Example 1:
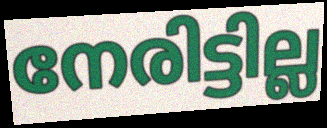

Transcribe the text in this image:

നേരിട്ടില്ല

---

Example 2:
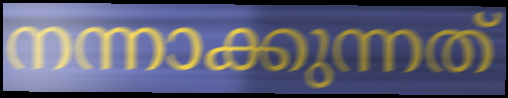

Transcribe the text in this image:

നന്നാക്കുന്നത്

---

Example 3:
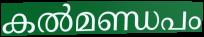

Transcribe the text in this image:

കൽമണ്ഡപം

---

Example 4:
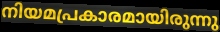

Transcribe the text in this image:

നിയമപ്രകാരമായിരുന്നു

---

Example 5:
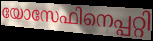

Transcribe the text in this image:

യോസേഫിനെപ്പറ്റി